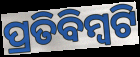
ପ୍ରତିବିମ୍ବଟି